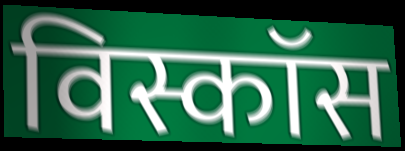
विस्कॉस